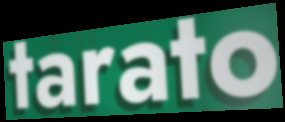
tarato